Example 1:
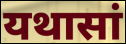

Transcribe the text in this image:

यथासां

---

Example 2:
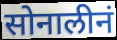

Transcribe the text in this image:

सोनालीनं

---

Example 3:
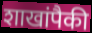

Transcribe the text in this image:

शाखांपैकी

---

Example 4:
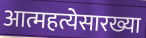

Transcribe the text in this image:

आत्महत्येसारख्या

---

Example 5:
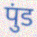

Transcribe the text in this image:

पुंड